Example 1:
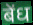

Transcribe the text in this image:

बेंध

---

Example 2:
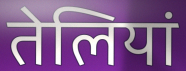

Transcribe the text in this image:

तेलियां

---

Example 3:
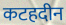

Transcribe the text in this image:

कटहदीन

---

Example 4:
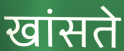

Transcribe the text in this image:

खांसते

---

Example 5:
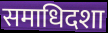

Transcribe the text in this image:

समाधिदशा